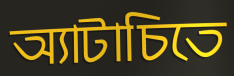
অ্যাটাচিতে